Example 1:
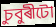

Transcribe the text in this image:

চুবুৰীটো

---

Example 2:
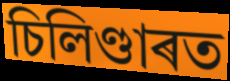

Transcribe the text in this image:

চিলিণ্ডাৰত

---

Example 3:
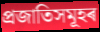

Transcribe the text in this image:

প্ৰজাতিসমূহৰ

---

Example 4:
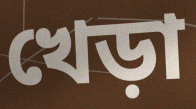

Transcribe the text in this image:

খেড়া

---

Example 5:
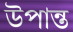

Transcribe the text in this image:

উপান্ত